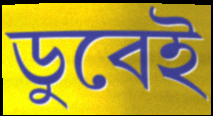
ডুবেই